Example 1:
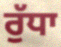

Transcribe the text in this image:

ਰੁੱਧਾ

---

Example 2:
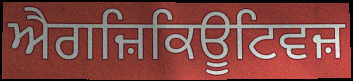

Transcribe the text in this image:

ਐਗਜ਼ਿਕਿਊਟਿਵਜ਼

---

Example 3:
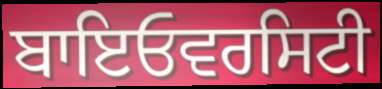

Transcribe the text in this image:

ਬਾਇਓਵਰਸਿਟੀ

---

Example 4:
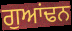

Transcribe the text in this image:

ਗੁਆਂਢਨ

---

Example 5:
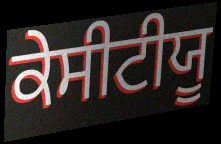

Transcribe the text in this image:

ਕੇਸੀਟੀਯੂ